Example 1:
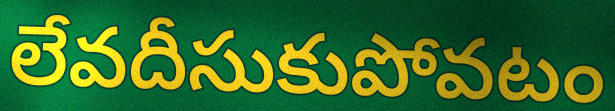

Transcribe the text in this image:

లేవదీసుకుపోవటం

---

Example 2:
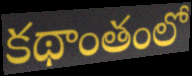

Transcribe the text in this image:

కథాంతంలో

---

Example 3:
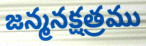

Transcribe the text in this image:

జన్మనక్షత్రము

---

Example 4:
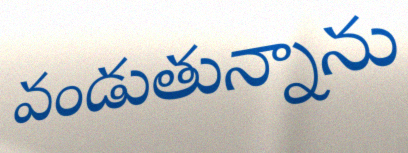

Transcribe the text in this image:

వండుతున్నాను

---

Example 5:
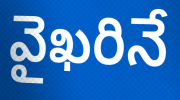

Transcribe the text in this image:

వైఖరినే